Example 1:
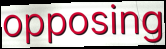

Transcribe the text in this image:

opposing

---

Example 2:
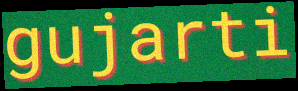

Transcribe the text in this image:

gujarti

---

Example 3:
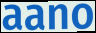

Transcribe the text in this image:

aano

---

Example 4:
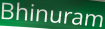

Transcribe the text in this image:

Bhinuram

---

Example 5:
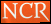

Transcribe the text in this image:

NCR